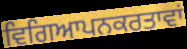
ਵਿਗਿਆਪਨਕਰਤਾਵਾਂ